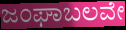
ಜಂಘಾಬಲವೇ